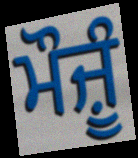
ਮੌਜ਼ੂੰ